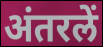
अंतरलें